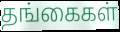
தங்கைகள்